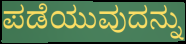
ಪಡೆಯುವುದನ್ನು